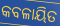
କବଳାୟିତ